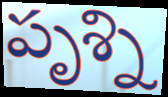
పృశ్ని